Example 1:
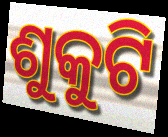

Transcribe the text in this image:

ଶୁକୁଟି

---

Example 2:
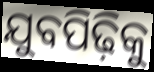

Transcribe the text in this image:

ଯୁବପିଢ଼ିକୁ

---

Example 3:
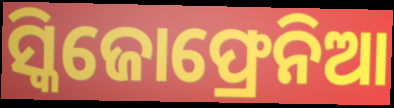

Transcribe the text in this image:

ସ୍କିଜୋଫ୍ରେନିଆ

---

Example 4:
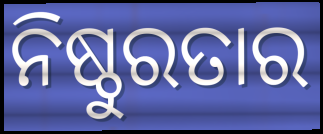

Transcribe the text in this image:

ନିଷ୍ଠୁରତାର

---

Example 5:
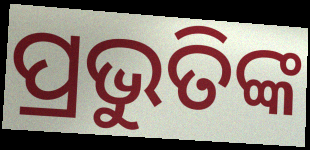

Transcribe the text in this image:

ପ୍ରଭୁତିଙ୍କ